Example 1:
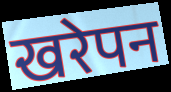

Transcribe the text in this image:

खरेपन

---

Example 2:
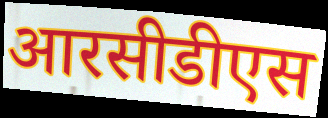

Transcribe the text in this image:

आरसीडीएस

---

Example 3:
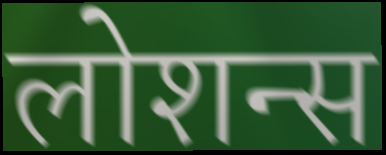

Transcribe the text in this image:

लोशन्स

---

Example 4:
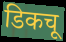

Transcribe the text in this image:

डिकचू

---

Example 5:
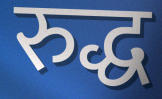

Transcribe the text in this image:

रुद्ध